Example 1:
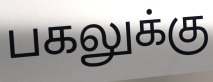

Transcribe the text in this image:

பகலுக்கு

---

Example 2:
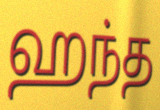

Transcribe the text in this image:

ஹந்த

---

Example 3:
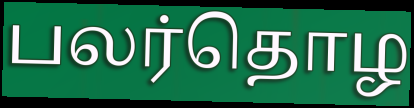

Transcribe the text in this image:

பலர்தொழ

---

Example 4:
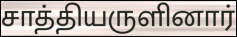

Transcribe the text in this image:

சாத்தியருளினார்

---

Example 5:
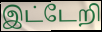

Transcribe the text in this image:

இட்டேறி